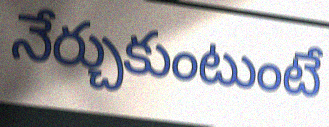
నేర్చుకుంటుంటే